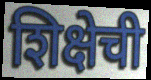
शिक्षेची